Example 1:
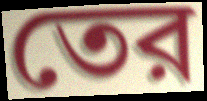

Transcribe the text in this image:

তের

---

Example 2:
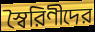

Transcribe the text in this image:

স্বৈরিণীদের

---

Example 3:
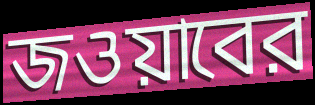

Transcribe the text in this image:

জওয়াবের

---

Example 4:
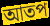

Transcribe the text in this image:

আতপ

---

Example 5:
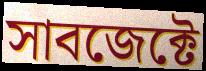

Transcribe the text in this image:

সাবজেক্টে